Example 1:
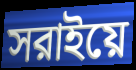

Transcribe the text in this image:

সরাইয়ে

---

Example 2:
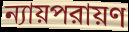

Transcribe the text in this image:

ন্যায়পরায়ণ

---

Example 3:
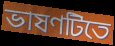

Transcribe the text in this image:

ভাষণটিতে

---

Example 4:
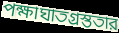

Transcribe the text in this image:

পক্ষাঘাতগ্রস্ততার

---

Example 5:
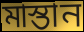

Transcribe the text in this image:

মাস্তান